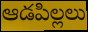
ఆడపిల్లలు